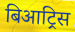
बिआट्रिस